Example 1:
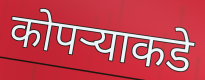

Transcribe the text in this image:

कोपऱ्याकडे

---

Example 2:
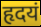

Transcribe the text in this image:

हृदयं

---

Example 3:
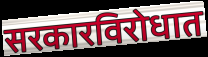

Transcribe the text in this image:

सरकारविरोधात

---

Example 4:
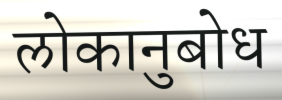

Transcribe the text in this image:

लोकानुबोध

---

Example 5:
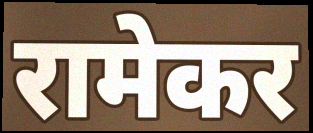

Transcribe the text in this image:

रामेकर